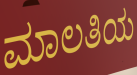
ಮಾಲತಿಯ